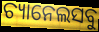
ଚ୍ୟାନେଲସବୁ